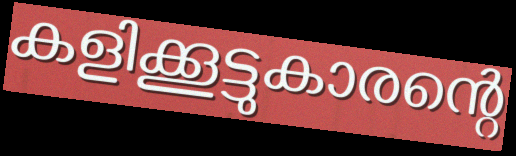
കളിക്കൂട്ടുകാരന്റെ